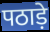
पठाड़े